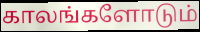
காலங்களோடும்